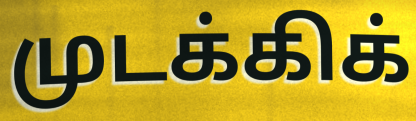
முடக்கிக்